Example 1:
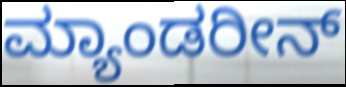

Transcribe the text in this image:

ಮ್ಯಾಂಡರೀನ್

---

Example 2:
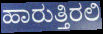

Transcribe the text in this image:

ಹಾರುತ್ತಿರಲಿ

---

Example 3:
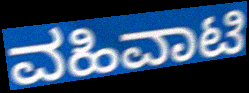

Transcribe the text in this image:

ವಹಿವಾಟಿ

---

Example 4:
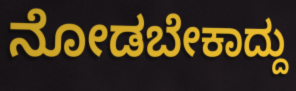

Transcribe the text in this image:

ನೋಡಬೇಕಾದ್ದು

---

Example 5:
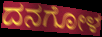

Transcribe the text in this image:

ದನಗೋಳ